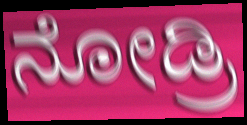
ನೋಡ್ರಿ